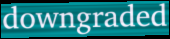
downgraded